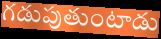
గడుపుతుంటాడు